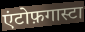
एंटोफ़गास्टा